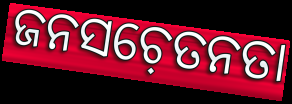
ଜନସଚ଼େତନତା